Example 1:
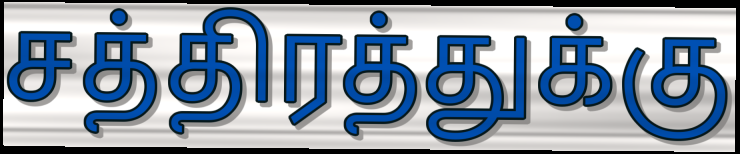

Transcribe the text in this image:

சத்திரத்துக்கு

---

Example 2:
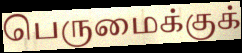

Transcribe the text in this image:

பெருமைக்குக்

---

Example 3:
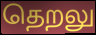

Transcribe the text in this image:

தெறலு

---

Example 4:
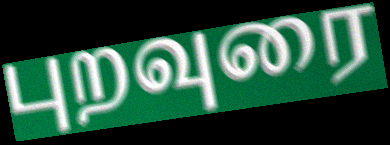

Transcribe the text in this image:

புறவுரை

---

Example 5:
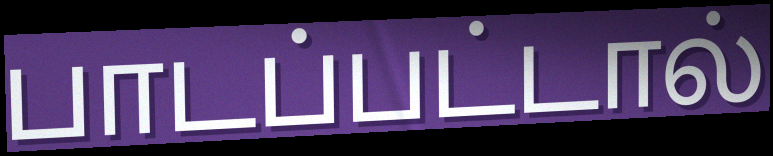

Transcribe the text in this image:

பாடப்பட்டால்